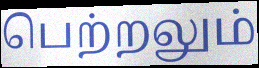
பெற்றலும்